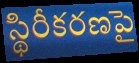
స్థిరీకరణపై